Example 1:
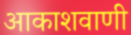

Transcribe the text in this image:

आकाशवाणी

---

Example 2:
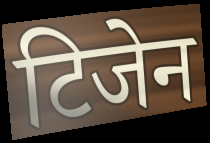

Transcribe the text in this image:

टिजेन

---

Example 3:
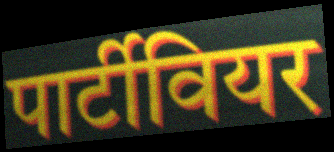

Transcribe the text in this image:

पार्टीवियर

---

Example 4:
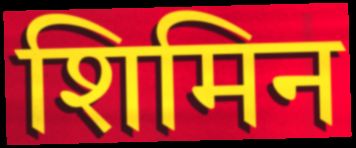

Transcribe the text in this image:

शिमिन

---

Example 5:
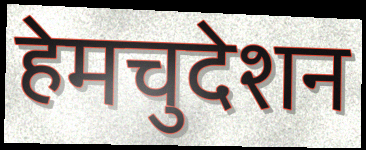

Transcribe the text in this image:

हेमचुदेशन